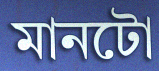
মানটো